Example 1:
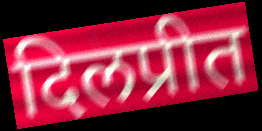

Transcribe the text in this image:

दिलप्रीत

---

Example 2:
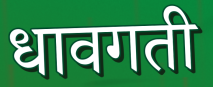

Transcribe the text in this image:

धावगती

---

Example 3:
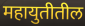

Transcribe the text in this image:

महायुतीतील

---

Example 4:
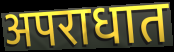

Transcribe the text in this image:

अपराधात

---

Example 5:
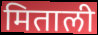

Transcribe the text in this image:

मिताली